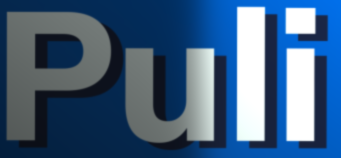
Puli